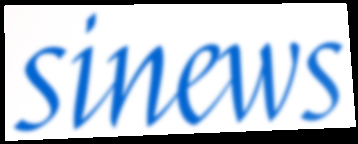
sinews